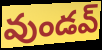
వుండవ్